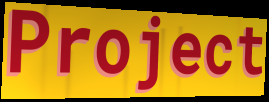
Project